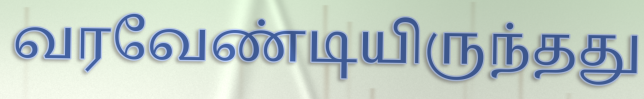
வரவேண்டியிருந்தது